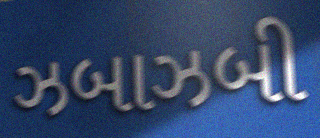
ઝબાઝબી